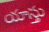
యాస్తు